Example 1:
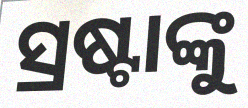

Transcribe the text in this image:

ସ୍ରଷ୍ଟାଙ୍କୁ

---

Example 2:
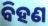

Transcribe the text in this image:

ବିହଣ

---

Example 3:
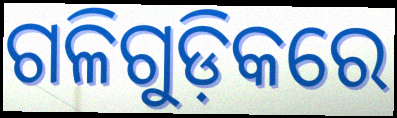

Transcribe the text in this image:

ଗଳିଗୁଡ଼ିକରେ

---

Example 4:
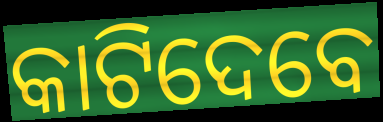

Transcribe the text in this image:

କାଟିଦେବେ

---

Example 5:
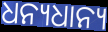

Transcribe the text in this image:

ଧନ୍ୟଧାନ୍ୟ